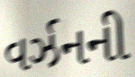
વર્ઝનની